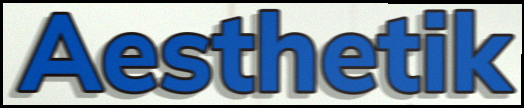
Aesthetik